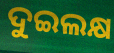
ଦୁଇଲକ୍ଷ